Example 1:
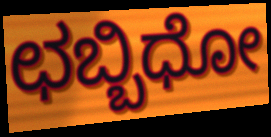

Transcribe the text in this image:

ಛಬ್ಬಿಧೋ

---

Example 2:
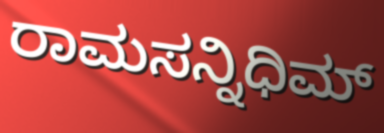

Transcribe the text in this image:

ರಾಮಸನ್ನಿಧಿಮ್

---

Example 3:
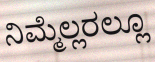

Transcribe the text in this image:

ನಿಮ್ಮೆಲ್ಲರಲ್ಲೂ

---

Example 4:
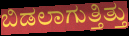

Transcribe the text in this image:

ಬಿಡಲಾಗುತ್ತಿತ್ತು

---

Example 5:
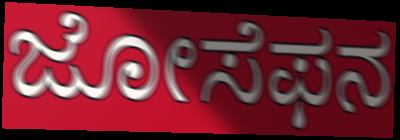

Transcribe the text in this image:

ಜೋಸೆಫನ